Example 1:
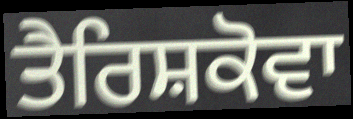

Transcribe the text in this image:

ਤੈਰਿਸ਼ਕੋਵਾ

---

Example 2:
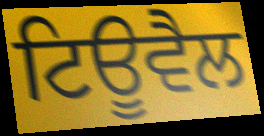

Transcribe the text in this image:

ਟਿਊਵੈਲ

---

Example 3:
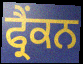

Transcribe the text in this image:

ਫ੍ਰੈਂਕਨ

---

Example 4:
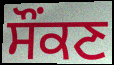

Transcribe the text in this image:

ਸੌਂਕਣ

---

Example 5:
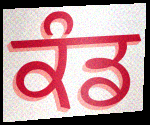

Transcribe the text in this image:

ਕੰਡ